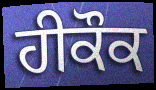
ਹੀਕੌਕ